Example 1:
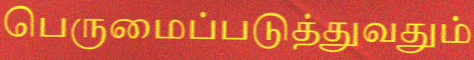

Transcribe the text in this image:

பெருமைப்படுத்துவதும்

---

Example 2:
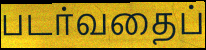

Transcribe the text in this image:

படர்வதைப்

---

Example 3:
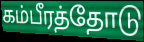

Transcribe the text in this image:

கம்பீரத்தோடு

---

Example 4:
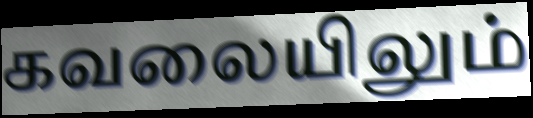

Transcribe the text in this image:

கவலையிலும்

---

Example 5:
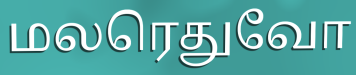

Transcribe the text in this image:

மலரெதுவோ